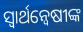
ସ୍ୱାର୍ଥନ୍ୱେଷୀଙ୍କ